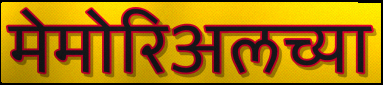
मेमोरिअलच्या